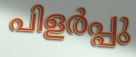
പിളർപ്പു